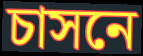
চাসনে